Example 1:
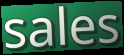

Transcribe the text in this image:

sales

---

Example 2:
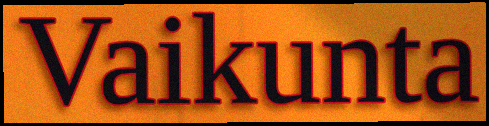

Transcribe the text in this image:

Vaikunta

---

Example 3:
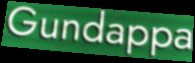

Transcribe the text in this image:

Gundappa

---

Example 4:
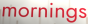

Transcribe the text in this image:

mornings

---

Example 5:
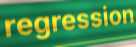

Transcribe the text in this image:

regression